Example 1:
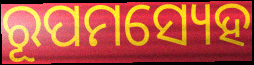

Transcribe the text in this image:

ରୂପମସ୍ୟେହ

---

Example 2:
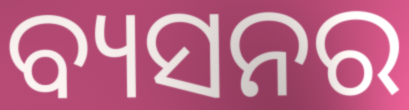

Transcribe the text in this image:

ବ୍ୟସନର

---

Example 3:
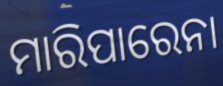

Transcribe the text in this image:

ମାରିପାରେନା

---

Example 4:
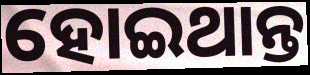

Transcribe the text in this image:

ହୋଇଥାନ୍ତ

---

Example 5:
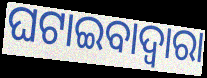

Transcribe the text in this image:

ଘଟାଇବାଦ୍ୱାରା